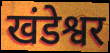
खंडेश्वर